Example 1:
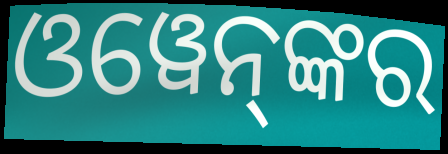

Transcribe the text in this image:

ଓୱେନ୍‌ଙ୍କର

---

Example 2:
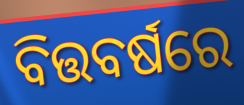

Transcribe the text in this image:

ବିତ୍ତବର୍ଷରେ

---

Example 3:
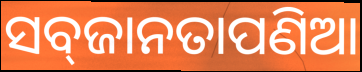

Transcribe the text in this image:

ସବ୍‌ଜାନତାପଣିଆ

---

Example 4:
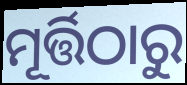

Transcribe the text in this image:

ମୂର୍ତ୍ତିଠାରୁ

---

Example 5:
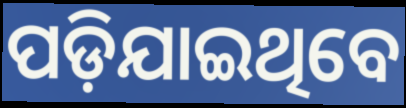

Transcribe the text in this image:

ପଡ଼ିଯାଇଥିବେ